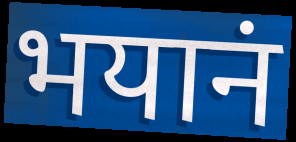
भयानं